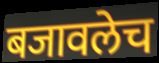
बजावलेच